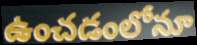
ఉంచడంలోనూ